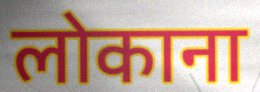
लोकाना